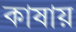
কাষায়